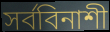
সর্ববিনাশী